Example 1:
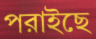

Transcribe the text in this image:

পরাইছে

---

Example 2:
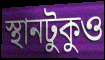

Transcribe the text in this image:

স্থানটুকুও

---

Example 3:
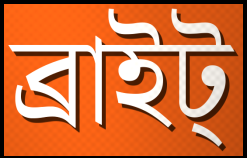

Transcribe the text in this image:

ব্রাইট্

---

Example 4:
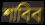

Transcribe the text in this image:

শাবিব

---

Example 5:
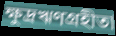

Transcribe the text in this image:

ক্ষুদ্রঋণগ্রহীতা